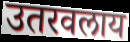
उतरवलाय